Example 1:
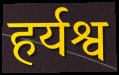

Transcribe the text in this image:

हर्यश्व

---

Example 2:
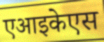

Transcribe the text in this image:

एआइकेएस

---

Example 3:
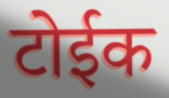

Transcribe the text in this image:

टोईक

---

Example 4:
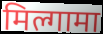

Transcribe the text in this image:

मिल्गामा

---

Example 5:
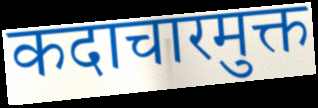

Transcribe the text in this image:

कदाचारमुक्त